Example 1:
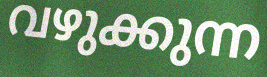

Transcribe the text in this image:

വഴുക്കുന്ന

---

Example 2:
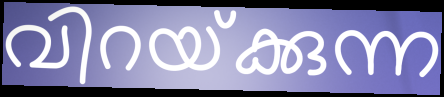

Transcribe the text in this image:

വിറയ്‌ക്കുന്ന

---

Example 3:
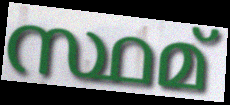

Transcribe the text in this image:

സ്ഥമ്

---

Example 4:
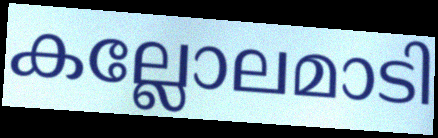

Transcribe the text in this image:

കല്ലോലമാടി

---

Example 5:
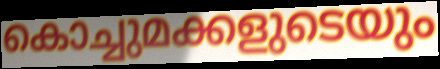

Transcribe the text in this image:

കൊച്ചുമക്കളുടെയും